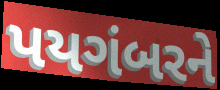
પયગંબરને